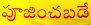
పూజించబడే